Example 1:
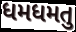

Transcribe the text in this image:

ધમધમતુ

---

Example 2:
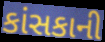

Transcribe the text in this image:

કાંસકાની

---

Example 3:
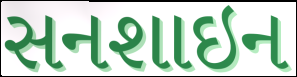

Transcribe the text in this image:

સનશાઇન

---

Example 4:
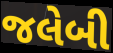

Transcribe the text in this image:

જલેબી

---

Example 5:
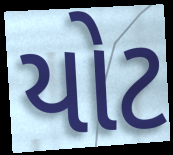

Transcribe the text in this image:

યોટ